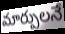
మార్పులనే